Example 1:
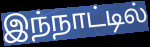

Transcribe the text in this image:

இந்நாட்டில்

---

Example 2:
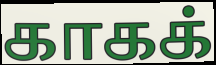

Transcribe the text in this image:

காகக்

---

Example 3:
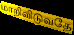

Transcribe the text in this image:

மாறிவிடுவதே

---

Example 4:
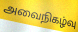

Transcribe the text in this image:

அவைநிகழ்வு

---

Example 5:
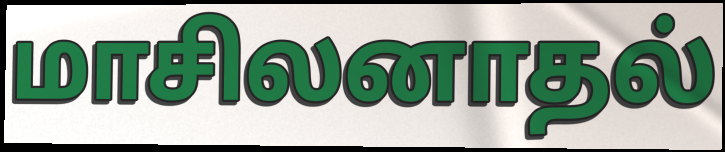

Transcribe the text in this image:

மாசிலனாதல்